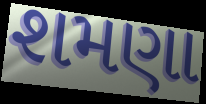
શમણા